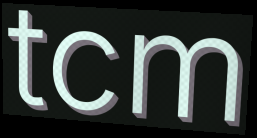
tcm